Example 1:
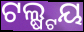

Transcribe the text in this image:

ଟଲ୍ଷ୍ଟୟ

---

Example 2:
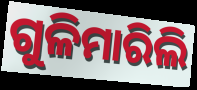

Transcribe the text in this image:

ଗୁଳିମାରିଲି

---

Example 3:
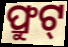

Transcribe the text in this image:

ଫ୍ରୁଟ୍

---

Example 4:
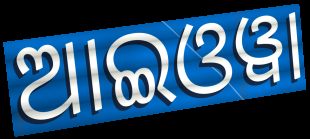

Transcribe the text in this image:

ଆଇଓୱା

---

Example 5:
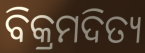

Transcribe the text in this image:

ବିକ୍ରମଦିତ୍ୟ